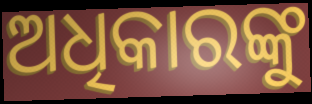
ଅଧିକାରଙ୍କୁ